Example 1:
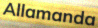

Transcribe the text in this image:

Allamanda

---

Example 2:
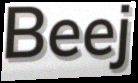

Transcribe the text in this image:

Beej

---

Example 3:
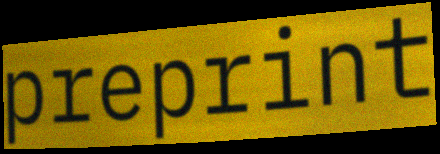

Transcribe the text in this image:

preprint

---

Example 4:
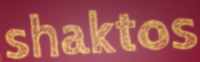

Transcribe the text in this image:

shaktos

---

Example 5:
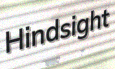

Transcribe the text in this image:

Hindsight